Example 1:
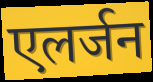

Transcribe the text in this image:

एलर्जन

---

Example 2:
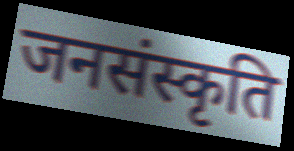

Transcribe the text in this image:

जनसंस्कृति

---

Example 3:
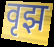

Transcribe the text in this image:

वृझ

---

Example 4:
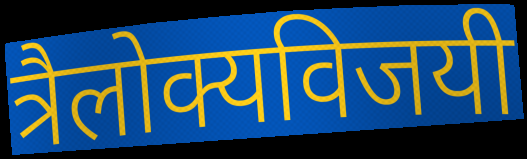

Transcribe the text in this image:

त्रैलोक्यविजयी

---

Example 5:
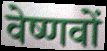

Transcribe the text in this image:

वेष्णवों